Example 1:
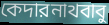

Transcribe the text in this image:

কেদারনাথবাবু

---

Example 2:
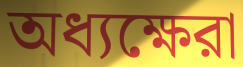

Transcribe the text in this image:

অধ্যক্ষেরা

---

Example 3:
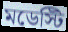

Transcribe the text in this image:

মডেস্টি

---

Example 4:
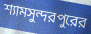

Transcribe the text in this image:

শ্যামসুন্দরপুরের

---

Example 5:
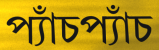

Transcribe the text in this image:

প্যাঁচপ্যাঁচ